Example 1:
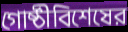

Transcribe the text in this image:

গোষ্ঠীবিশেষের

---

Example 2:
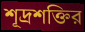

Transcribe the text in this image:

শূদ্রশক্তির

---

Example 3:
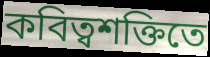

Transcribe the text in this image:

কবিত্বশক্তিতে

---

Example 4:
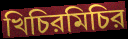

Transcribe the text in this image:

খিচিরমিচির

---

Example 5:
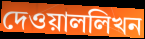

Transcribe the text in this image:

দেওয়াললিখন